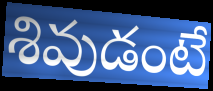
శివుడంటే